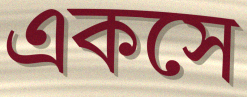
একসে